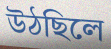
উঠছিলে